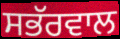
ਸਭੱਰਵਾਲ